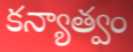
కన్యాత్వం